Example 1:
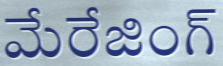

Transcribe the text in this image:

మేరేజింగ్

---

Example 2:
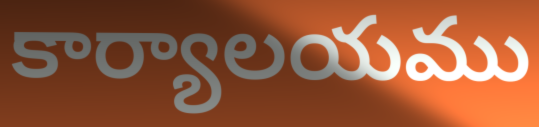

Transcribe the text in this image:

కార్యాలయము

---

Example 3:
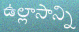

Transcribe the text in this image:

ఉల్లాసాన్ని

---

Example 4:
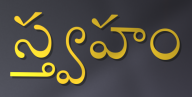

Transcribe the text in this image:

స్త్వహం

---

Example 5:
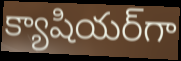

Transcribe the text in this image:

క్యాషియర్‌గా